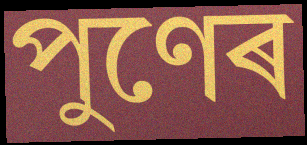
পুণেৰ